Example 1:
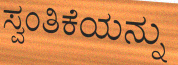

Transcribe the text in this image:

ಸ್ವಂತಿಕೆಯನ್ನು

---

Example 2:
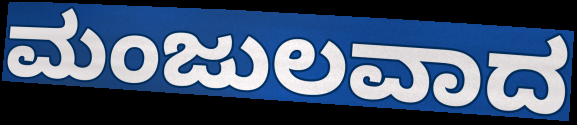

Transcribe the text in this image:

ಮಂಜುಲವಾದ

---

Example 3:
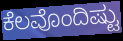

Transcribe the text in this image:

ಕೆಲವೊಂದಿಷ್ಟು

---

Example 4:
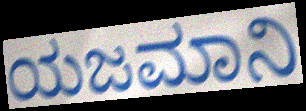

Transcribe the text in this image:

ಯಜಮಾನಿ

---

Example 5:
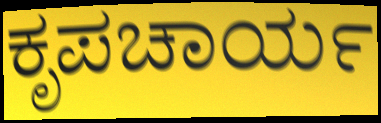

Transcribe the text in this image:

ಕೃಪಚಾರ್ಯ